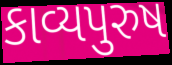
કાવ્યપુરુષ